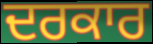
ਦਰਕਾਰ